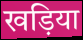
खड़िया